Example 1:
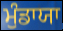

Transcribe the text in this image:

ਮੁੰਡਾਯਾ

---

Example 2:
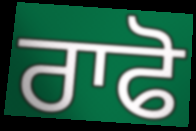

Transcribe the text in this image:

ਰਾਫੋ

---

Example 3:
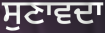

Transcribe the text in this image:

ਸੁਣਾਵਦਾ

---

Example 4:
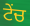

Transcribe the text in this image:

ਟੇਂਚ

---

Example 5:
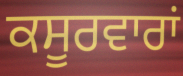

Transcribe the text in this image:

ਕਸੂਰਵਾਰਾਂ